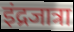
इंद्रजात्रा